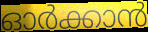
ഓർക്കാൻ